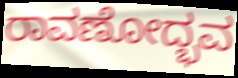
ರಾವಣೋದ್ಭವ